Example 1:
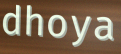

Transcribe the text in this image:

dhoya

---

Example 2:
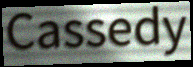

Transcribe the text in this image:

Cassedy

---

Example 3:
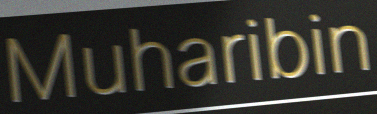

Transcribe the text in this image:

Muharibin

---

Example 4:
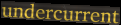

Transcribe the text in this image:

undercurrent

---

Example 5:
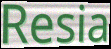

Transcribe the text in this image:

Resia